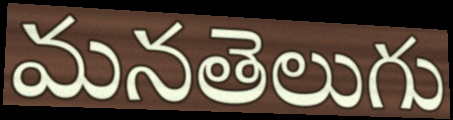
మనతెలుగు